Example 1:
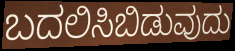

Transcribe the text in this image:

ಬದಲಿಸಿಬಿಡುವುದು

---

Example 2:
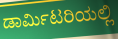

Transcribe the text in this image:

ಡಾರ್ಮಿಟರಿಯಲ್ಲಿ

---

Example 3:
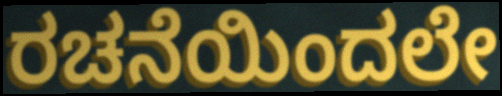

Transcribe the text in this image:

ರಚನೆಯಿಂದಲೇ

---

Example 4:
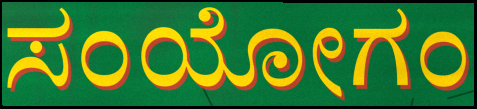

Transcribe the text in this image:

ಸಂಯೋಗಂ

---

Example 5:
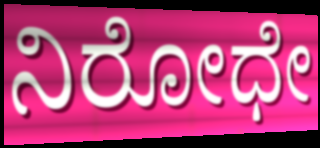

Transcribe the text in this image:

ನಿರೋಧೇ